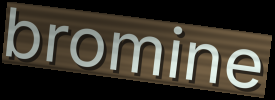
bromine